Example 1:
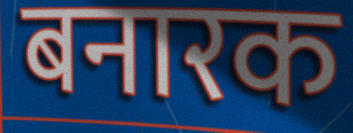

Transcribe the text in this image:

बनारक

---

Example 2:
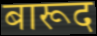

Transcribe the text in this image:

बारूद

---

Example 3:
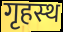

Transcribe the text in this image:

गृहस्‍थ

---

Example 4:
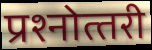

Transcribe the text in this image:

प्रश्‍नोत्‍तरी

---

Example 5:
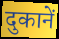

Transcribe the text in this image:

दुकानें